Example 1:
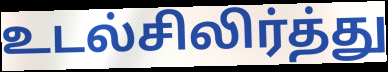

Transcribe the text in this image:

உடல்சிலிர்த்து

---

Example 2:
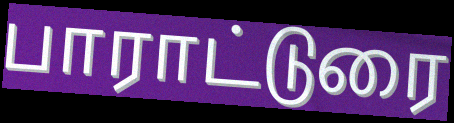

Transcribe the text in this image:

பாராட்டுரை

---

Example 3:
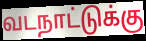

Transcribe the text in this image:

வடநாட்டுக்கு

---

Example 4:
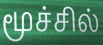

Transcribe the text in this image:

மூச்சில்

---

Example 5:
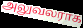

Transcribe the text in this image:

அலுவலராக